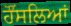
ਹੌਂਸਲਿਆਂ